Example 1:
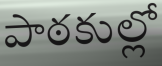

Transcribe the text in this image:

పాఠకుల్లో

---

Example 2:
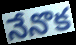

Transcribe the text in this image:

నేనొక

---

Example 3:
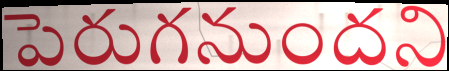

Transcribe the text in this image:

పెరుగనుందని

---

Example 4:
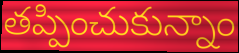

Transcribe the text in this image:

తప్పించుకున్నాం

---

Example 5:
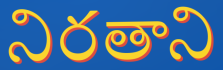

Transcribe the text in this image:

నిరతాని